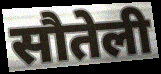
सौतेली